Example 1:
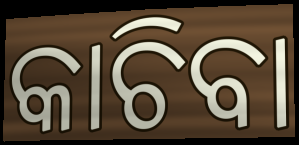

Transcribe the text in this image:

କାଚିବା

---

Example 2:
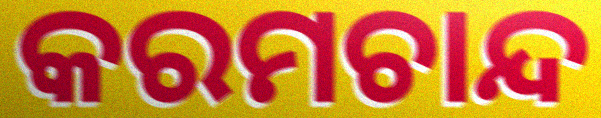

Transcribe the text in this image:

କରମଚାନ୍ଦ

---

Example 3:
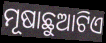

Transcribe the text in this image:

ମୂଷାଛୁଆଟିଏ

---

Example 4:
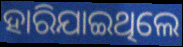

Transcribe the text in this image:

ହାରିଯାଇଥିଲେ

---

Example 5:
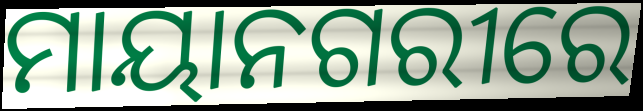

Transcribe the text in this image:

ମାୟାନଗରୀରେ